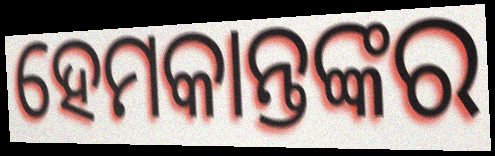
ହେମକାନ୍ତଙ୍କର